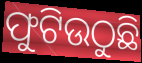
ଫୁଟିଉଠୁଛି